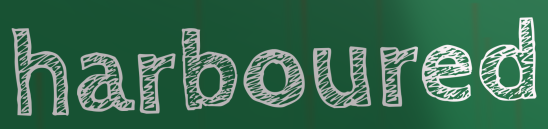
harboured